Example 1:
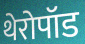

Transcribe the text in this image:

थेरोपॉड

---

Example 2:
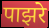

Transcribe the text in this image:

पाझरे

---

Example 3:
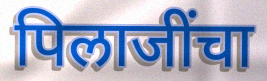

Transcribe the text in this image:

पिलाजींचा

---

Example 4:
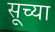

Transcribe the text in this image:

सूच्या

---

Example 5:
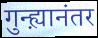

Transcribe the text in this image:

गुन्ह्य़ानंतर